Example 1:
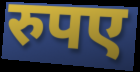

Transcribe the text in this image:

रुपए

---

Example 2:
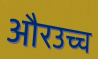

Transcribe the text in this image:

औरउच्च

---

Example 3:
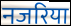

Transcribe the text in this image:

नजरिया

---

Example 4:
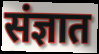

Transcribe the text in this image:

संज्ञात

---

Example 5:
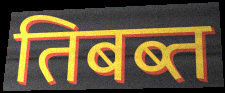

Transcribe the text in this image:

तिबब्त